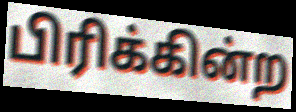
பிரிக்கின்ற